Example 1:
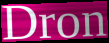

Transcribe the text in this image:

Dron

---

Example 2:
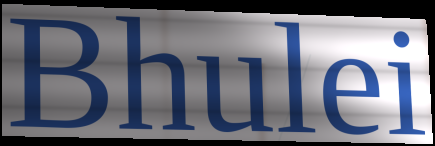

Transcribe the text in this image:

Bhulei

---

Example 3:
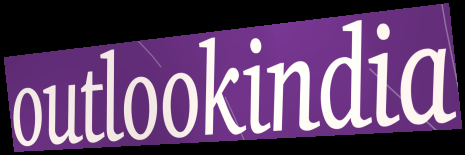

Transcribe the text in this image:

outlookindia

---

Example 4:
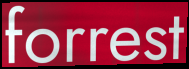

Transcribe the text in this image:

forrest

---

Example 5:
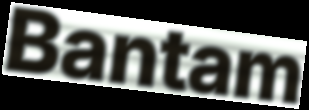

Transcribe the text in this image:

Bantam